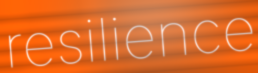
resilience